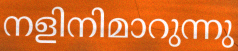
നളിനിമാറുന്നു